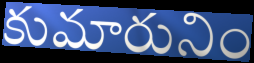
కుమారునిం